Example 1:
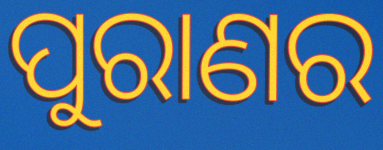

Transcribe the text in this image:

ପୁରାଣର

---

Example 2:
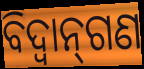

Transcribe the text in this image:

ବିଦ୍ୱାନ୍‌ଗଣ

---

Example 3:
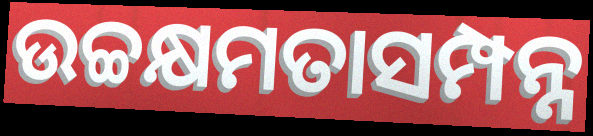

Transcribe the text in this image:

ଉଚ୍ଚକ୍ଷମତାସମ୍ପନ୍ନ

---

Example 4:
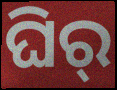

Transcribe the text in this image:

ଘିର୍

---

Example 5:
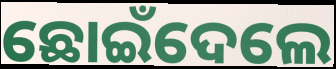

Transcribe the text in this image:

ଛୋଇଁଦେଲେ